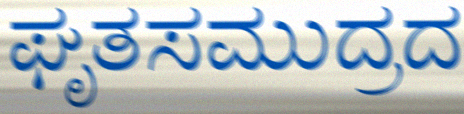
ಘೃತಸಮುದ್ರದ